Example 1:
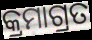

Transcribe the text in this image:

କ୍ରମାଗ୍ରତ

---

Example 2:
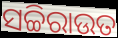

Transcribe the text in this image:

ସଚ୍ଚିରାଉତ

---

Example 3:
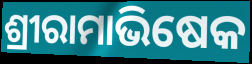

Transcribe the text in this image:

ଶ୍ରୀରାମାଭିଷେକ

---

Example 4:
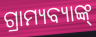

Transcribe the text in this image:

ଗ୍ରାମ୍ୟବ୍ୟାଙ୍କ୍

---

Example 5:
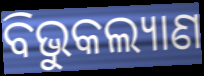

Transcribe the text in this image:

ବିଭୁକଲ୍ୟାଣ